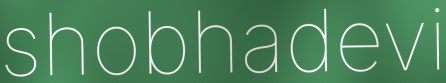
shobhadevi